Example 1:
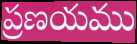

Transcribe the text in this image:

ప్రణయము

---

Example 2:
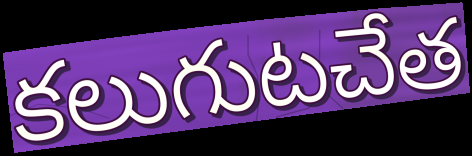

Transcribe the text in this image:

కలుగుటచేత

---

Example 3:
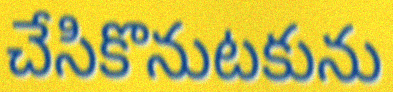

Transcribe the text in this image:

చేసికొనుటకును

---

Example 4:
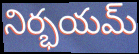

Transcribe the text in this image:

నిర్భయమ్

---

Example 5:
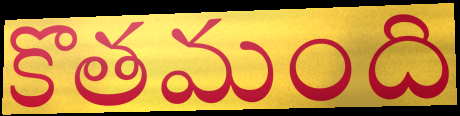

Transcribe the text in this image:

కొతమంది